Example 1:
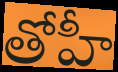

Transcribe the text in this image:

తోహీ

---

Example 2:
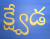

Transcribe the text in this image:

క్ష్వేడ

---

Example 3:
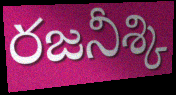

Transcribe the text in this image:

రజనీశ్కి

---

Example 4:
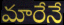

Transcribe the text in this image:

మారేనే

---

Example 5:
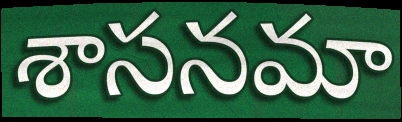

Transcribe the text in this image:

శాసనమా